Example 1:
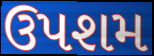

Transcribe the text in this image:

ઉપશમ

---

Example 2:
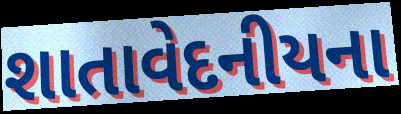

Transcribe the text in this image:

શાતાવેદનીયના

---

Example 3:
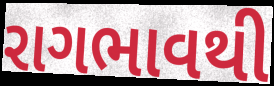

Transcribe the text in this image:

રાગભાવથી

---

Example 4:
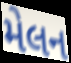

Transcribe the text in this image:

મેલન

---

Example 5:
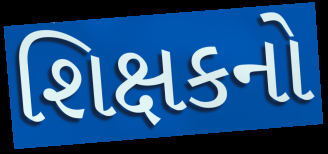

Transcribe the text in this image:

શિક્ષકનો